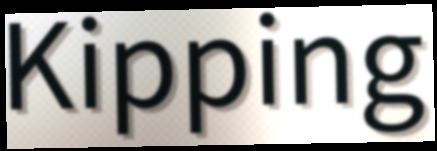
Kipping